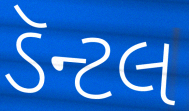
ડૅન્ટલ